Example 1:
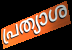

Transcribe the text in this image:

പ്രത്യാശ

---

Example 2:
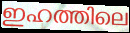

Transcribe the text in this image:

ഇഹത്തിലെ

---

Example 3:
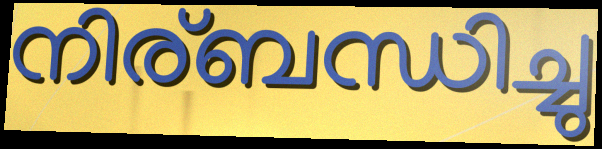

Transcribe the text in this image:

നിര്ബന്ധിച്ചു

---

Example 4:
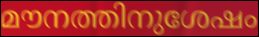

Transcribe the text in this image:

മൗനത്തിനുശേഷം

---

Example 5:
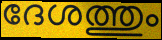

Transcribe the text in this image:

ദേശത്തും